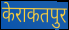
केराकतपुर